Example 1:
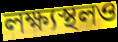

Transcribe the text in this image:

লক্ষ্যস্থলও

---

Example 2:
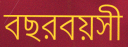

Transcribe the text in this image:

বছরবয়সী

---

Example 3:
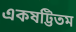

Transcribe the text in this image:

একষট্টিতম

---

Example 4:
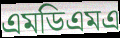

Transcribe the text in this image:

এমডিএমএ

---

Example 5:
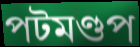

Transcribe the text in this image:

পটমণ্ডপ